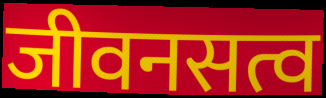
जीवनसत्व